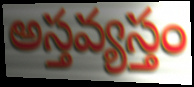
అస్తవ్యస్తం